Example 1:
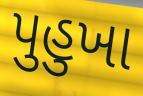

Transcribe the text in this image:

પુહુખા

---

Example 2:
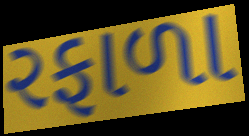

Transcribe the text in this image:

રફાળા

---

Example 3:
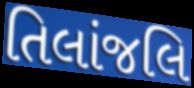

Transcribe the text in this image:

તિલાંજલિ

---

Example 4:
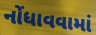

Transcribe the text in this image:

નોંધાવવામાં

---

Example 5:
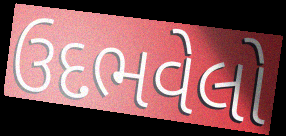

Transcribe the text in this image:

ઉદભવેલો